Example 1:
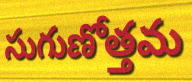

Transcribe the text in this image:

సుగుణోత్తమ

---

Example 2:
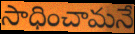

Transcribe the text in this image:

సాధించామనే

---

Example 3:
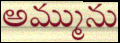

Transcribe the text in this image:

అమ్మును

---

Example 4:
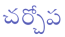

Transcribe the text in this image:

చర్చోప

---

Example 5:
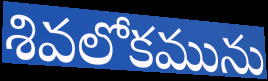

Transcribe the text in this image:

శివలోకమును